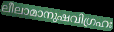
ലീലാമാനുഷവിഗ്രഹഃ